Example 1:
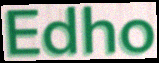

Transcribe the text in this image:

Edho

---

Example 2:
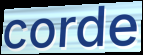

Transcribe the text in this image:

corde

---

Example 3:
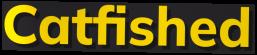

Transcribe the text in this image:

Catfished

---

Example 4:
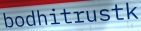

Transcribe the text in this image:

bodhitrustk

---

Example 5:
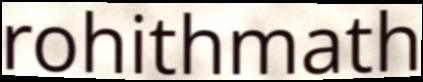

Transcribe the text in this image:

rohithmath